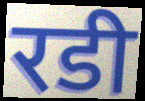
रडी